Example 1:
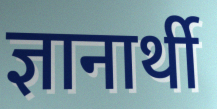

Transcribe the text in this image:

ज्ञानार्थी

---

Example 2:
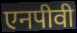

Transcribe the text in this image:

एनपीवी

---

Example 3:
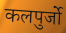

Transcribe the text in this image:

कलपुर्जो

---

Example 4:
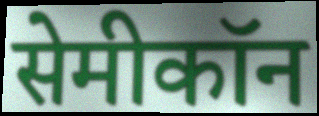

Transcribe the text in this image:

सेमीकॉन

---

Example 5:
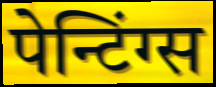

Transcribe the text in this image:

पेन्टिंग्स